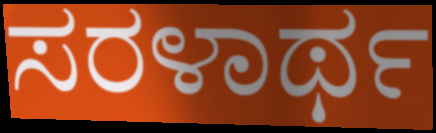
ಸರಳಾರ್ಥ